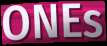
ONEs